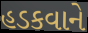
હડકવાને